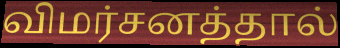
விமர்சனத்தால்